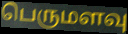
பெருமளவு